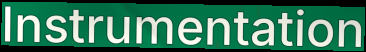
Instrumentation